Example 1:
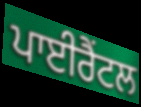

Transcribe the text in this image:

ਪਾਈਰੈਂਟਲ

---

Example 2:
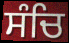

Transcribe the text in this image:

ਸੰਚਿ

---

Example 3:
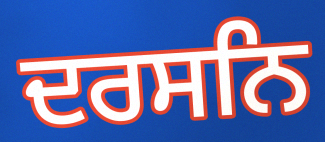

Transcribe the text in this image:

ਦਰਸਨਿ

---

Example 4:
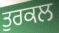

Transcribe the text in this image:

ਤੁਰਕਲ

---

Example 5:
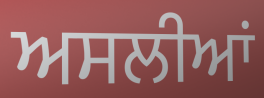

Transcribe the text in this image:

ਅਸਲੀਆਂ